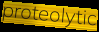
proteolytic